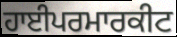
ਹਾਈਪਰਮਾਰਕੀਟ